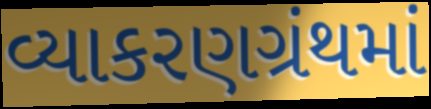
વ્યાકરણગ્રંથમાં